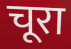
चूरा